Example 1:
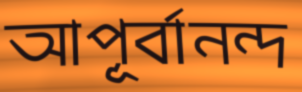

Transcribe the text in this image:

আপূর্বানন্দ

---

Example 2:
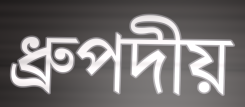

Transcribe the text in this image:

ধ্রুপদীয়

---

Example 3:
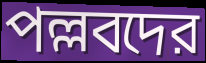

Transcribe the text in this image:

পল্লবদের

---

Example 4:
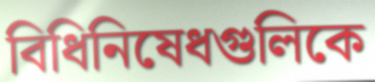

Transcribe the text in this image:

বিধিনিষেধগুলিকে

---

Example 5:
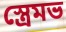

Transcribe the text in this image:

স্ত্রেমভ